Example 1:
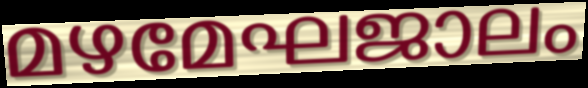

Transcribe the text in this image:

മഴമേഘജാലം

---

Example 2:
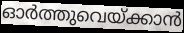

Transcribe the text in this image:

ഓർത്തുവെയ്ക്കാൻ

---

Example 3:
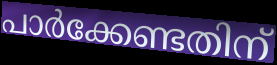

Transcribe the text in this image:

പാർക്കേണ്ടതിന്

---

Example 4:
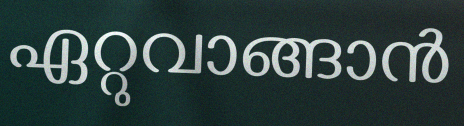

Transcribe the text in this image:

ഏറ്റുവാങ്ങാൻ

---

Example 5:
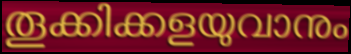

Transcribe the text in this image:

തൂക്കിക്കളയുവാനും